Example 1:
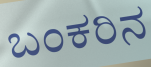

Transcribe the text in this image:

ಬಂಕರಿನ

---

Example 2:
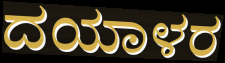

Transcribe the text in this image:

ದಯಾಳರ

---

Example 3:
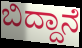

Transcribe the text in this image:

ಬಿದ್ದಾನೆ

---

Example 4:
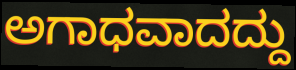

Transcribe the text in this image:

ಅಗಾಧವಾದದ್ದು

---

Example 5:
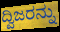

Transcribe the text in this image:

ದ್ವಿಜರನ್ನು